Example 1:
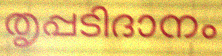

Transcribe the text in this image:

തൃപ്പടിദാനം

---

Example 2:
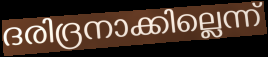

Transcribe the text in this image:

ദരിദ്രനാക്കില്ലെന്ന്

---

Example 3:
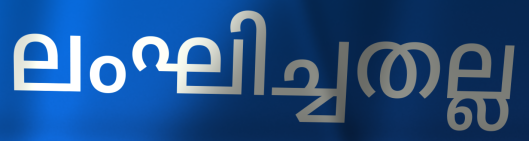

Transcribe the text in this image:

ലംഘിച്ചതല്ല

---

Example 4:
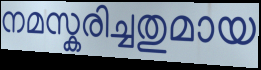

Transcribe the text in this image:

നമസ്കരിച്ചതുമായ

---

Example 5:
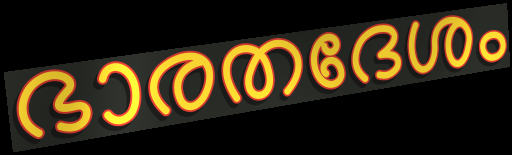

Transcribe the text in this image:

ഭാരതദേശം